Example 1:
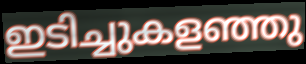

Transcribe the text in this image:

ഇടിച്ചുകളഞ്ഞു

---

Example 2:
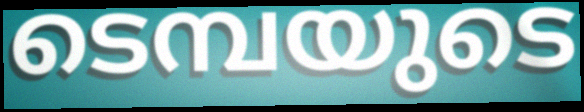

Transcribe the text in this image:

ടെമ്പയുടെ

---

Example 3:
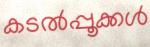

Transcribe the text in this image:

കടൽപ്പൂക്കൾ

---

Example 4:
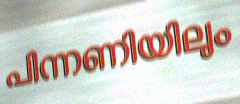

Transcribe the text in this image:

പിന്നണിയിലും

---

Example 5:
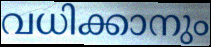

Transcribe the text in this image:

വധിക്കാനും